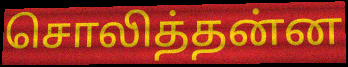
சொலித்தன்ன